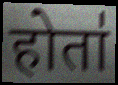
होता॑